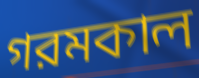
গরমকাল